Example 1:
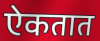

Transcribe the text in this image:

ऐकतात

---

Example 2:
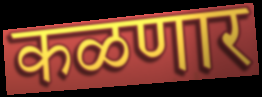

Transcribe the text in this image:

कळणार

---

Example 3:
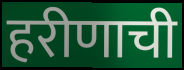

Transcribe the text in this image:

हरीणाची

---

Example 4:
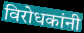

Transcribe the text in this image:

विरोधकांनी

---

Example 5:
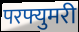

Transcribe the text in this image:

परफ्युमरी